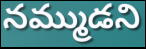
నమ్ముడని